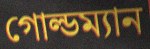
গোল্ডম্যান